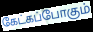
கேட்கப்போகும்